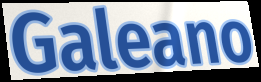
Galeano